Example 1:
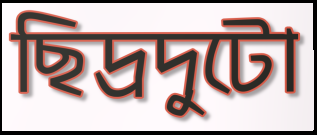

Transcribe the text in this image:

ছিদ্রদুটো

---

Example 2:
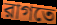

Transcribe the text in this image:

রাগতে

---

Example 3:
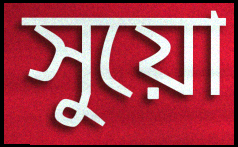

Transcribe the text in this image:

সুয়ো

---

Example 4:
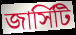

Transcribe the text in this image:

জার্সিটি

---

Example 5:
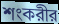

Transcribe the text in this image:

শংকরীর